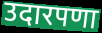
उदारपणा